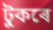
টুকৰে